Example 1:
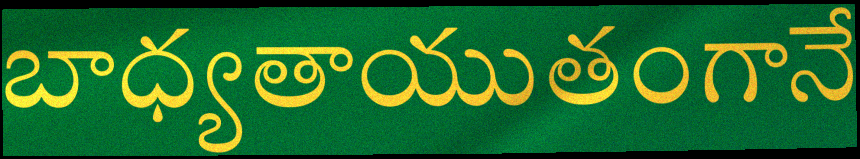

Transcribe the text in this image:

బాధ్యతాయుతంగానే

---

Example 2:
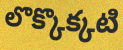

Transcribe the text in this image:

లొక్కొక్కటి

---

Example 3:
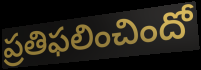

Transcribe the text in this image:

ప్రతిఫలించిందో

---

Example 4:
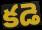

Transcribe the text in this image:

కడె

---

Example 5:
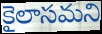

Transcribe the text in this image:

కైలాసమని